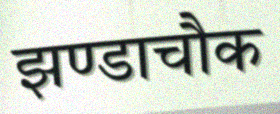
झण्डाचौक